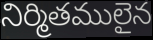
నిర్మితములైన